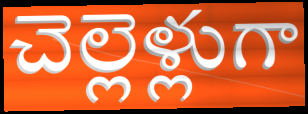
చెల్లెళ్లుగా